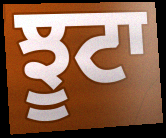
ਝੂਟਾ